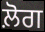
ਲ਼ੋਗ